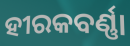
ହୀରକବର୍ଣ୍ଣା